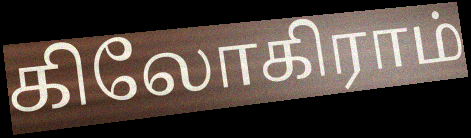
கிலோகிராம்